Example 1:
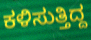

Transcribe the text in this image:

ಕಳಿಸುತ್ತಿದ್ದ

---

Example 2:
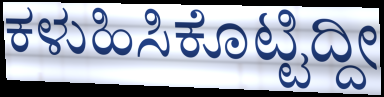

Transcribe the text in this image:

ಕಳುಹಿಸಿಕೊಟ್ಟಿದ್ದೀ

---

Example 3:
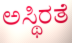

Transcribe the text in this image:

ಅಸ್ಥಿರತೆ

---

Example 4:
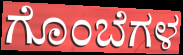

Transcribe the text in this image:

ಗೊಂಬೆಗಳ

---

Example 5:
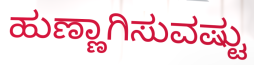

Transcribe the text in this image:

ಹುಣ್ಣಾಗಿಸುವಷ್ಟು